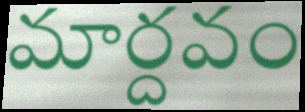
మార్దవం